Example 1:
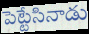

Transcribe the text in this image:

పెట్టేసినాడు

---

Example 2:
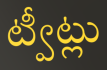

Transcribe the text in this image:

ట్వీట్లు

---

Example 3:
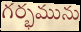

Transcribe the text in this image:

గర్భమును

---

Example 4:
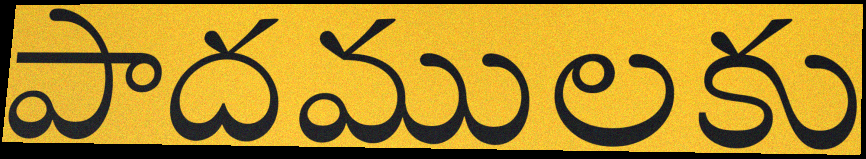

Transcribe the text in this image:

పాదములకు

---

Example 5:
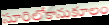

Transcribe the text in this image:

సూరిలోకానుకూలం